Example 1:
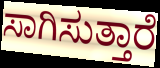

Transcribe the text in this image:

ಸಾಗಿಸುತ್ತಾರೆ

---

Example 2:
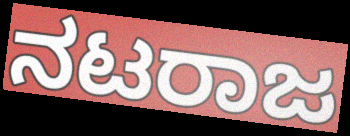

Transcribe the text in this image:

ನಟರಾಜ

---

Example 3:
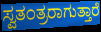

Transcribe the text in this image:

ಸ್ವತಂತ್ರರಾಗುತ್ತಾರೆ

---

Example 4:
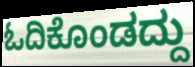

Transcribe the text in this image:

ಓದಿಕೊಂಡದ್ದು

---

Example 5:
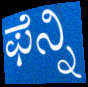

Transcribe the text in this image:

ಫೆನ್ನಿ